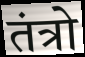
तंत्रो